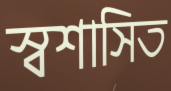
স্বশাসিত